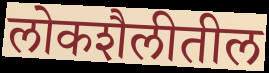
लोकशैलीतील